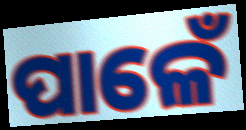
ପାଳେଁ